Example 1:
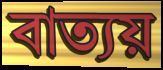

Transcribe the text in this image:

বাত্যয়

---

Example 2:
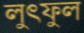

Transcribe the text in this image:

লুৎফুল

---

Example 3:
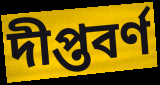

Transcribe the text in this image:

দীপ্তবর্ণ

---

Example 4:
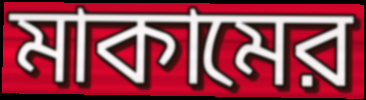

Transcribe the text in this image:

মাকামের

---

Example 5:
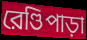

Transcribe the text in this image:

রেণ্ডিপাড়া